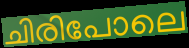
ചിരിപോലെ